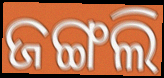
ଜଙ୍ଗଲି